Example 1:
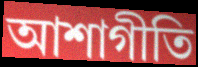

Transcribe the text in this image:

আশাগীতি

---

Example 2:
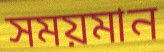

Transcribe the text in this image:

সময়মান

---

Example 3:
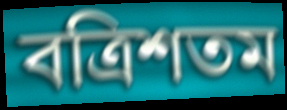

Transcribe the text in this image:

বত্রিশতম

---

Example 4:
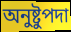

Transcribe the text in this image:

অনুষ্টুপদা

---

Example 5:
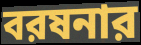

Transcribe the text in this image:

বরষনার